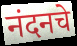
नंदनचे